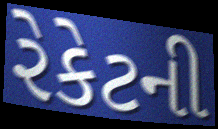
રેકેટની